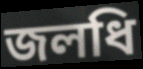
জলধি